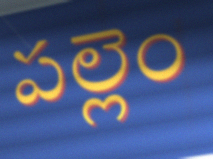
పల్లెం